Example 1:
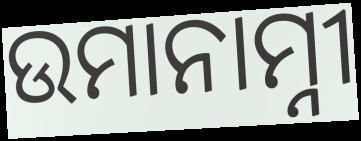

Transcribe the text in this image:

ଉମାନାମ୍ନୀ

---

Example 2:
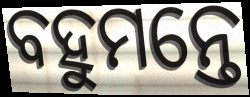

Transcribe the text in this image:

ବହୁମନ୍ତେ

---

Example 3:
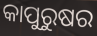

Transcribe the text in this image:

କାପୁରୁଷର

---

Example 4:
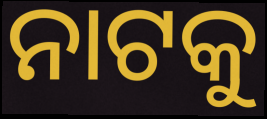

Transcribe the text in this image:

ନାଟକୁ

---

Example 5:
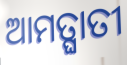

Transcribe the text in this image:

ଆମତ୍ଘାତୀ